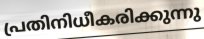
പ്രതിനിധീകരിക്കുന്നു